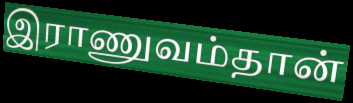
இராணுவம்தான்